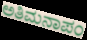
ಅತಿಮನಾಪಂ